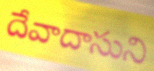
దేవాదాసుని